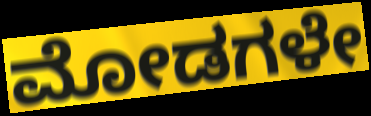
ಮೋಡಗಳೇ